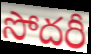
సోదరీ